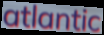
atlantic